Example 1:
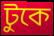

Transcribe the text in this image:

টুকে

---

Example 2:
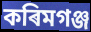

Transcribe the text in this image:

কৰিমগঞ্জ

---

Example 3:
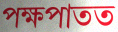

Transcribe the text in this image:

পক্ষপাতত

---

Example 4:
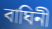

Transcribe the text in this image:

বাঘিনী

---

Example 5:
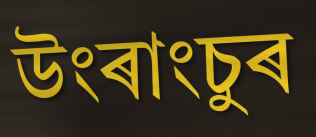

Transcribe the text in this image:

উংৰাংচুৰ